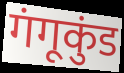
गंगूकुंड